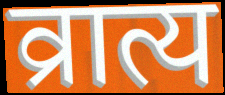
व्रात्य